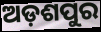
ଅଡ଼ଶପୁର